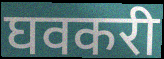
घवकरी